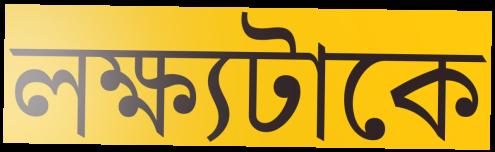
লক্ষ্যটাকে